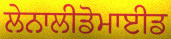
ਲੇਨਾਲੀਡੋਮਾਈਡ